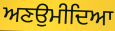
ਅਣਉਮੀਦਿਆ